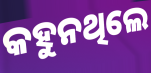
କହୁନଥିଲେ